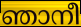
ഞാനീ